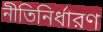
নীতিনির্ধারণ